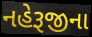
નહેરૂજીના